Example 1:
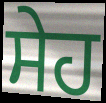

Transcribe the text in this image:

ਸੇਹ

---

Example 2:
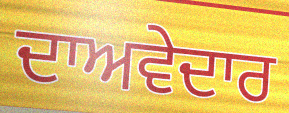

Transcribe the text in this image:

ਦਾਅਵੇਦਾਰ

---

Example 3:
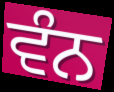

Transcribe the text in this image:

ਵੰਨ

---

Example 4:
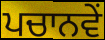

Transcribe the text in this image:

ਪਚਾਨਵੇਂ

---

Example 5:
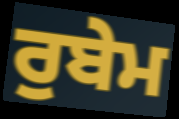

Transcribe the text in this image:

ਰੁਬੇਮ